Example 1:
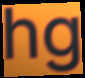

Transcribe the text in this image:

hg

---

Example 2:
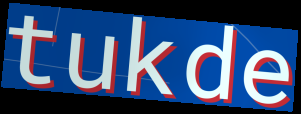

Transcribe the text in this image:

tukde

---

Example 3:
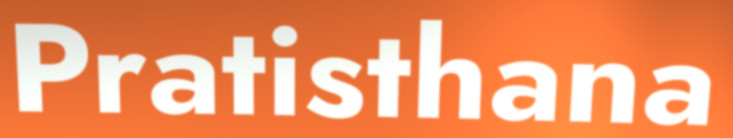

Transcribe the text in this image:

Pratisthana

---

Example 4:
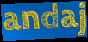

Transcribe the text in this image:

andaj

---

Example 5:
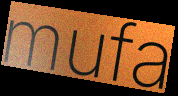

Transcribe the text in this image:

mufa